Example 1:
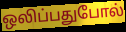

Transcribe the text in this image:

ஒலிப்பதுபோல்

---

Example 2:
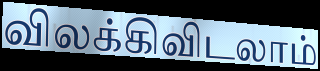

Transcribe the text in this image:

விலக்கிவிடலாம்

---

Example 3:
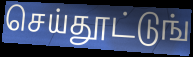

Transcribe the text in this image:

செய்தூட்டுங்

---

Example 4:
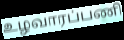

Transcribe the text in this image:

உழவாரப்பணி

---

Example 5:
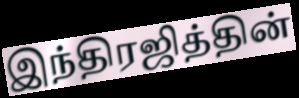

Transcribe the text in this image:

இந்திரஜித்தின்